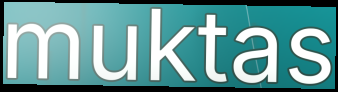
muktas